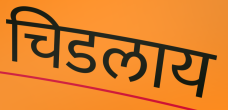
चिडलाय